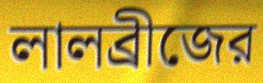
লালব্রীজের